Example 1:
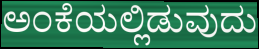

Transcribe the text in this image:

ಅಂಕೆಯಲ್ಲಿಡುವುದು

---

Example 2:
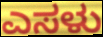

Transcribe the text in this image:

ಎಸಳು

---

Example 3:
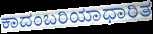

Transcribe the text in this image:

ಕಾದಂಬರಿಯಾಧಾರಿತ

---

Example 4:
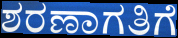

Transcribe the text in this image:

ಶರಣಾಗತಿಗೆ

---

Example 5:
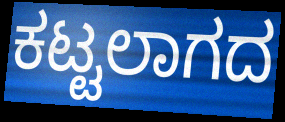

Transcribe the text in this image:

ಕಟ್ಟಲಾಗದ